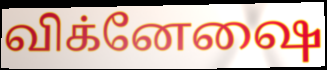
விக்னேஷை